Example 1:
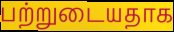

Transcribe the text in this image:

பற்றுடையதாக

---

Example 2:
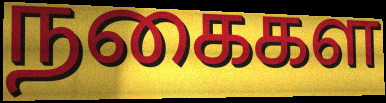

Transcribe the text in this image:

நகைகள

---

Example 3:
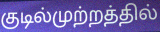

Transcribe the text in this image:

குடில்முற்றத்தில்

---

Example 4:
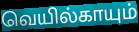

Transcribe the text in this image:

வெயில்காயும்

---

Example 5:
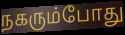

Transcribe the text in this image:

நகரும்போது